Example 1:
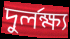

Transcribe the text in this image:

দুর্লক্ষ্য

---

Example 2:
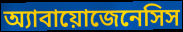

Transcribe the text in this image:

অ্যাবায়োজেনেসিস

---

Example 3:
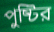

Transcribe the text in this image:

পুষ্টির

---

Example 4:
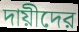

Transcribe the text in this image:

দায়ীদের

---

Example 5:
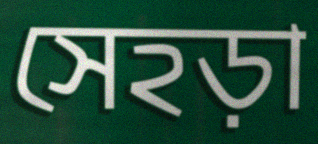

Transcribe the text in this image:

সেহড়া